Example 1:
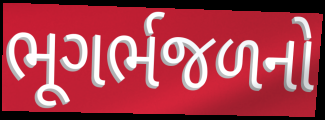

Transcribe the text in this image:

ભૂગર્ભજળનો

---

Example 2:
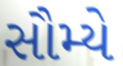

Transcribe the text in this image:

સૌમ્યે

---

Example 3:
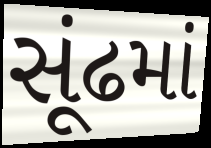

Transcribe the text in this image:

સૂંઢમાં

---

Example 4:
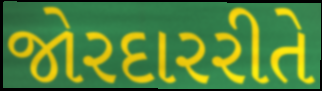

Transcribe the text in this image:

જોરદારરીતે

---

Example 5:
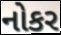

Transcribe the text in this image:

નોકર